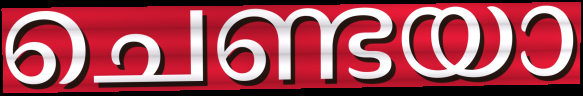
ചെണ്ടയാ